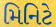
મિનિટે